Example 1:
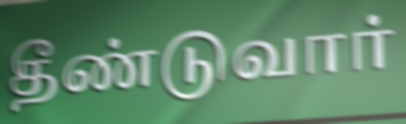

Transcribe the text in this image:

தீண்டுவார்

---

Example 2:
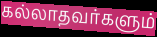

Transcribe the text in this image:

கல்லாதவர்களும்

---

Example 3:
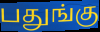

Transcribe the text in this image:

பதுங்கு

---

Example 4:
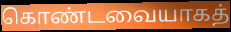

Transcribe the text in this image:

கொண்டவையாகத்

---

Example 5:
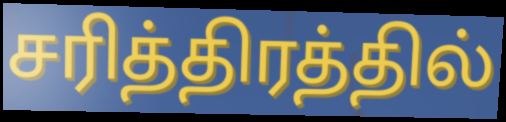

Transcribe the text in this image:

சரித்திரத்தில்